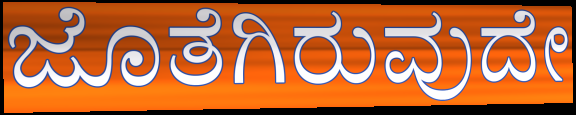
ಜೊತೆಗಿರುವುದೇ